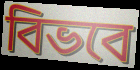
বিভবে